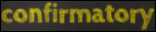
confirmatory